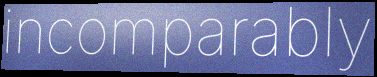
incomparably